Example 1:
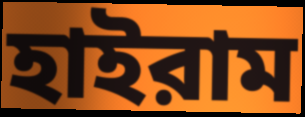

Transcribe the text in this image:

হাইরাম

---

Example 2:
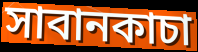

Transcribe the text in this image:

সাবানকাচা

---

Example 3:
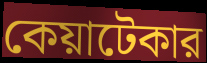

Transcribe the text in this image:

কেয়াটেকার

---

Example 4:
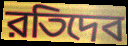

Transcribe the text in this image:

রতিদেব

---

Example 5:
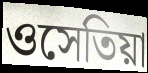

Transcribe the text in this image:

ওসেতিয়া